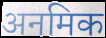
अनमिक